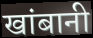
खांबानी